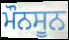
ਮੌਨਸੂਨ